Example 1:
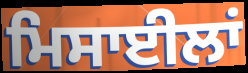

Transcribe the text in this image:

ਮਿਸਾਈਲਾਂ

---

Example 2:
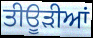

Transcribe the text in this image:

ਤੀਊੜੀਆਂ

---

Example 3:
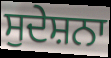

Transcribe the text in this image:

ਸੁਦੇਸ਼ਨਾ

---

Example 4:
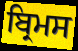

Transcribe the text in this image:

ਬ੍ਰਿਮਸ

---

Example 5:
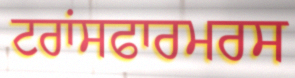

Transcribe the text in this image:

ਟਰਾਂਸਫਾਰਮਰਸ